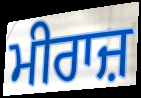
ਮੀਰਾਜ਼